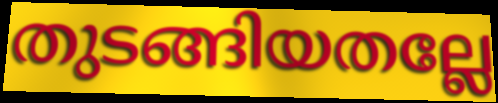
തുടങ്ങിയതല്ലേ